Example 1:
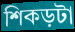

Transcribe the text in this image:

শিকড়টা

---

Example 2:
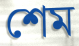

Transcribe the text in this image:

শেম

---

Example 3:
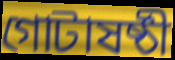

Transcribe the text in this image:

গোটাষষ্ঠী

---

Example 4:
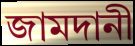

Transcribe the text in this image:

জামদানী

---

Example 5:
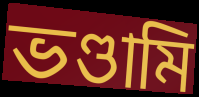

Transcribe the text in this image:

ভণ্ডামি